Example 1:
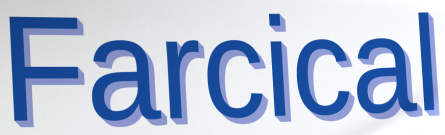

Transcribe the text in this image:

Farcical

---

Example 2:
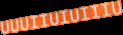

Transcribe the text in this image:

UUUIIUIUIIIU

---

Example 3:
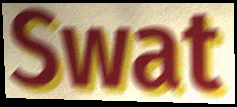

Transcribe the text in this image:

Swat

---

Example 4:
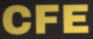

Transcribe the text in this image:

CFE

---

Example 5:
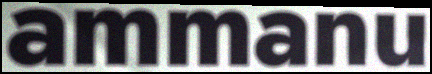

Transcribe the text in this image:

ammanu